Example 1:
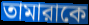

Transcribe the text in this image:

তামারাকে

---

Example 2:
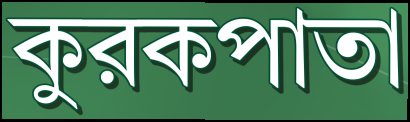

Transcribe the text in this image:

কুরকপাতা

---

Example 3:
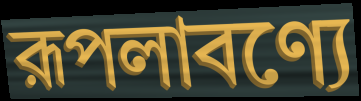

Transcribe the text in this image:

রূপলাবণ্যে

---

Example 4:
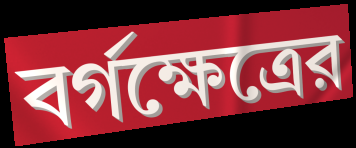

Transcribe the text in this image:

বর্গক্ষেত্রের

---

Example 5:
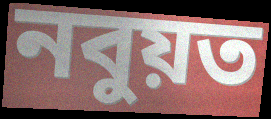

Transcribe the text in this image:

নবুয়ত